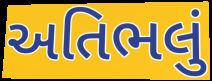
અતિભલું